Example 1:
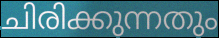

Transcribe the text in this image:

ചിരിക്കുന്നതും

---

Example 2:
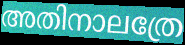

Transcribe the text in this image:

അതിനാലത്രേ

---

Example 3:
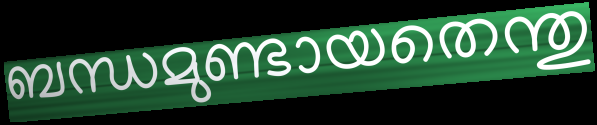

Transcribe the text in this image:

ബന്ധമുണ്ടായതെന്തു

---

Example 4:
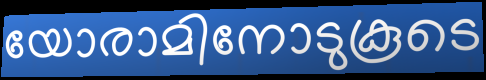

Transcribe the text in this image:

യോരാമിനോടുകൂടെ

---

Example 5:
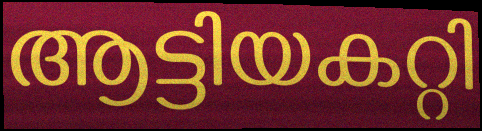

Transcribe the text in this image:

ആട്ടിയകറ്റി